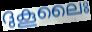
ദുകൂലൈഃ